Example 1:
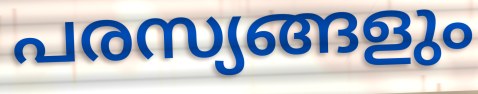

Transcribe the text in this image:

പരസ്യങ്ങളും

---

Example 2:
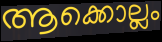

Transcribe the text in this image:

ആക്കൊല്ലം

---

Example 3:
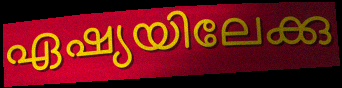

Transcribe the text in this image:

ഏഷ്യയിലേക്കു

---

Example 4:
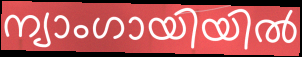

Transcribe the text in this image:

ന്യാംഗായിയിൽ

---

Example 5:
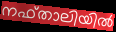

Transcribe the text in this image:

നഫ്താലിയിൽ